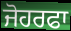
ਜੋਹਰਫਾ